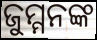
ଜୁମ୍ମନଙ୍କ